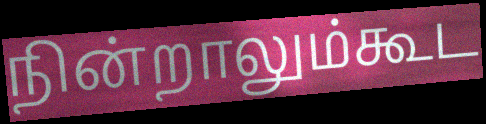
நின்றாலும்கூட